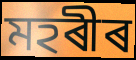
মহৰীৰ